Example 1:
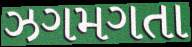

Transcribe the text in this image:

ઝગમગતા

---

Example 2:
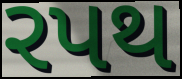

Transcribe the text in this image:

રપથ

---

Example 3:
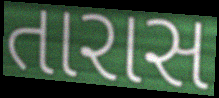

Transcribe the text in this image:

તારાસ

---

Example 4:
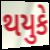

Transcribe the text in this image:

થયુકે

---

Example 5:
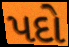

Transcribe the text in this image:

પદો